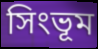
সিংভূম